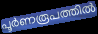
പൂർണരൂപത്തിൽ